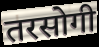
तरसोगी